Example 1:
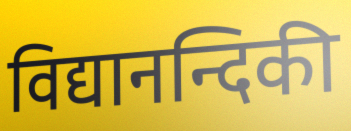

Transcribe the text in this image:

विद्यानन्दिकी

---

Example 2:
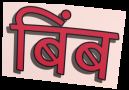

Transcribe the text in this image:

बिंब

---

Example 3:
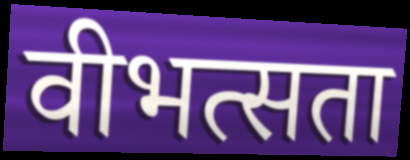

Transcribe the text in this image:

वीभत्सता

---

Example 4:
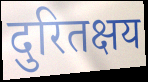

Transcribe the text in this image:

दुरितक्षय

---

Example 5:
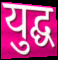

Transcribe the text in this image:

युद्घ